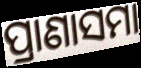
ପ୍ରାଣାସମା